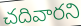
చదివారని